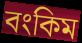
বংকিম